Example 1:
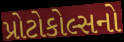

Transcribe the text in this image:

પ્રોટોકોલ્સનો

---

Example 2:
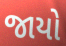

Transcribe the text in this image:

જાયો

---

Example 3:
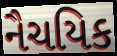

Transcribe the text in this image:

નૈચયિક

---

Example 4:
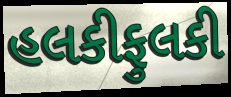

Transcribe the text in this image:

હલકીફુલકી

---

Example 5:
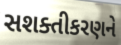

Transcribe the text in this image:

સશક્તીકરણને